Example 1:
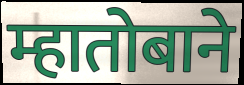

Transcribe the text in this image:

म्हातोबाने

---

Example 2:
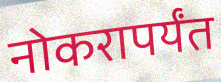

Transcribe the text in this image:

नोकरापर्यंत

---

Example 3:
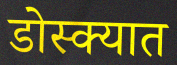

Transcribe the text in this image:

डोस्क्यात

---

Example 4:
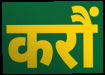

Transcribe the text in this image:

करौं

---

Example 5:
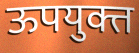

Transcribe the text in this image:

ऊपयुक्त